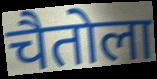
चैतोला